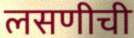
लसणीची